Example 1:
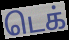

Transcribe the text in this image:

டெக்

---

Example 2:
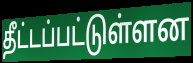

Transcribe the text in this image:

தீட்டப்பட்டுள்ளன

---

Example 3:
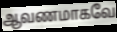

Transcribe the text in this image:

ஆவணமாகவே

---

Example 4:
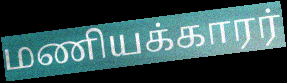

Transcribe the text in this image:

மணியக்காரர்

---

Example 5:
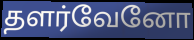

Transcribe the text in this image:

தளர்வேனோ